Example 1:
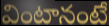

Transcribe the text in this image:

వింటానంటే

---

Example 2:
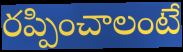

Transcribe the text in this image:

రప్పించాలంటే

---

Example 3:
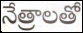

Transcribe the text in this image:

నేత్రాలతో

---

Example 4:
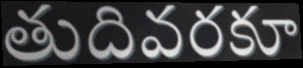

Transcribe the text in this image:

తుదివరకూ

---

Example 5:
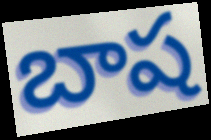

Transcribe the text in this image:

బాష